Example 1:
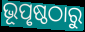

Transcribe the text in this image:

ଭୂପୃଷ୍ଠଠାରୁ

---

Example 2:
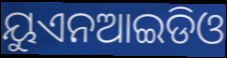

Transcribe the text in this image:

ୟୁଏନଆଇଡିଓ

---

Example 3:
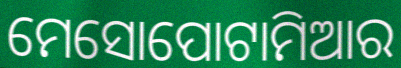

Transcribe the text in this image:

ମେସୋପୋଟାମିଆର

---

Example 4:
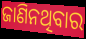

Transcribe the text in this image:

ଜାଣିନଥିବାର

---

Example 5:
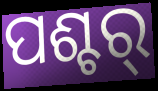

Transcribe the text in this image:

ପଶ୍ଚର୍